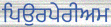
ਪਿਉਰਪੇਰੀਅਮ